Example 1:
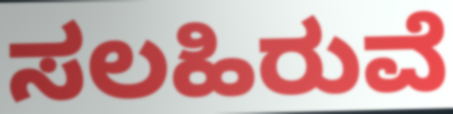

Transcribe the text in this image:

ಸಲಹಿರುವೆ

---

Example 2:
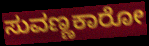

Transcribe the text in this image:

ಸುವಣ್ಣಕಾರೋ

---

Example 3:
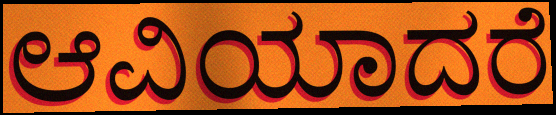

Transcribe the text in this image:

ಆವಿಯಾದರೆ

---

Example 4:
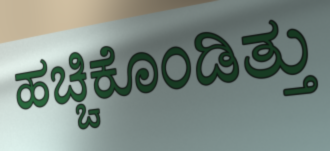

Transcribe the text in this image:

ಹಚ್ಚಿಕೊಂಡಿತ್ತು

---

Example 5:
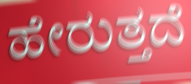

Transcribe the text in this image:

ಹೇರುತ್ತದೆ